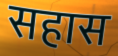
सहास